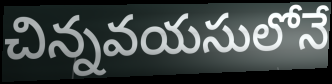
చిన్నవయసులోనే